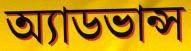
অ্যাডভান্স